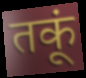
तकूं